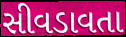
સીવડાવતા